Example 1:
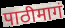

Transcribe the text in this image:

पाठीमागं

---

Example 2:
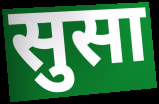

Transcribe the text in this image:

सुसा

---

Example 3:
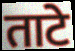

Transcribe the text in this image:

ताटे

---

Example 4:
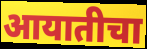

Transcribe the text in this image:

आयातीचा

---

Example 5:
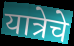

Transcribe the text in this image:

यात्रेचे